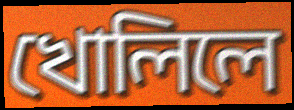
খোলিলে